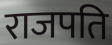
राजपति